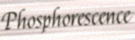
Phosphorescence